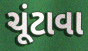
ચૂંટાવા